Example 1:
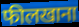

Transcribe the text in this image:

फीलखाना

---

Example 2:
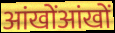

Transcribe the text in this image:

आंखोंआंखों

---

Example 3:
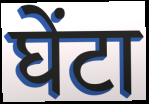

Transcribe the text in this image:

घेंटा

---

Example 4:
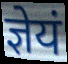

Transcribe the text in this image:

ज्ञेयं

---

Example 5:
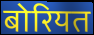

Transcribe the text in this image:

बोरियत